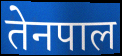
तेनपाल